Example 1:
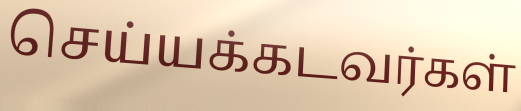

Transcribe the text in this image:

செய்யக்கடவர்கள்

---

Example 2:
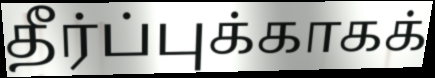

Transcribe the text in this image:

தீர்ப்புக்காகக்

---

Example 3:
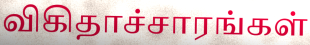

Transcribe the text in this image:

விகிதாச்சாரங்கள்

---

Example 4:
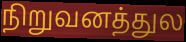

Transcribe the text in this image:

நிறுவனத்துல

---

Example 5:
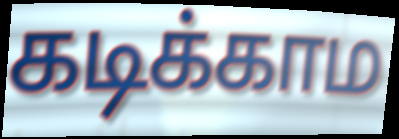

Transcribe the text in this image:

கடிக்காம